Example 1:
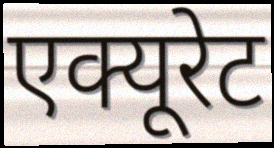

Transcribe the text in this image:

एक्यूरेट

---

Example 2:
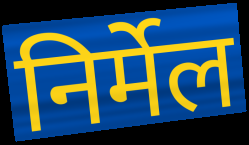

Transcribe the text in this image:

निर्मेल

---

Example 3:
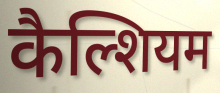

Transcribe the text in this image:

कैल्शियम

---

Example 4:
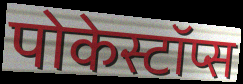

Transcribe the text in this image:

पोकेस्टॉप्स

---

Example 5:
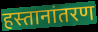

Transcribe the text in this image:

हस्तानांतरण